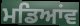
ਮਡਿਆਂਵ